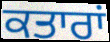
ਕਤਾਰਾਂ